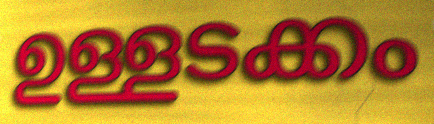
ഉള്ളടക്കം